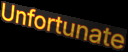
Unfortunate